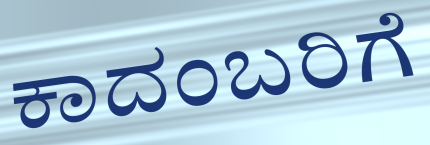
ಕಾದಂಬರಿಗೆ